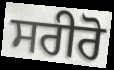
ਸਰੀਰੋ